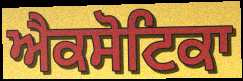
ਐਕਸੋਟਿਕਾ